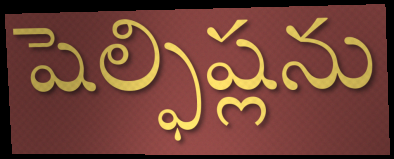
షెల్ఫిష్లను